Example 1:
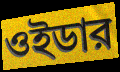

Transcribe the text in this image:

ওইডার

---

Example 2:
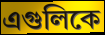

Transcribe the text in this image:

এগুলিকে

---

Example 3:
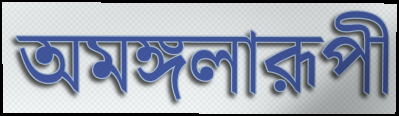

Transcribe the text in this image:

অমঙ্গলারূপী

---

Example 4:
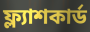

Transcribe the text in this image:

ফ্ল্যাশকার্ড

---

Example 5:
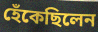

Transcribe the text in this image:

হেঁকেছিলেন